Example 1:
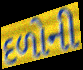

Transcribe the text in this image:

દળોની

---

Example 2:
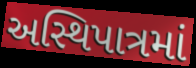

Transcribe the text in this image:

અસ્થિપાત્રમાં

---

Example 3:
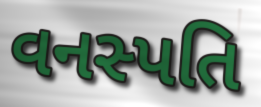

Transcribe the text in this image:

વનસ્પતિ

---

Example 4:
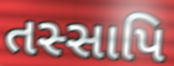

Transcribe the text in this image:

તસ્સાપિ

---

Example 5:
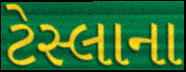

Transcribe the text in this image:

ટેસ્લાના